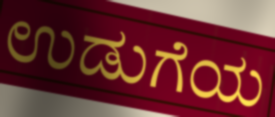
ಉಡುಗೆಯ